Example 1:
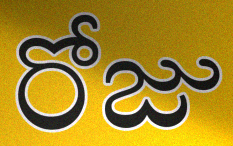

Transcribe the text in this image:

రోజు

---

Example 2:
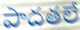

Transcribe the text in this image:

పాదతలే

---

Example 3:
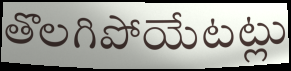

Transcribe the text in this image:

తొలగిపోయేటట్లు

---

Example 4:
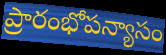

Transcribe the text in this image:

ప్రారంభోపన్యాసం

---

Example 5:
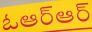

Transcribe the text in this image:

ఓఆర్ఆర్